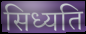
सिध्यति